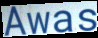
Awas